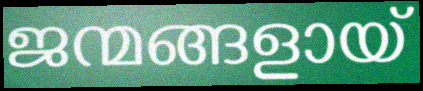
ജന്മങ്ങളായ്